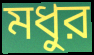
মধুর